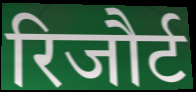
रिजौर्ट